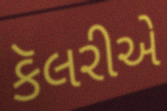
કૅલરીએ